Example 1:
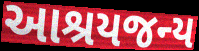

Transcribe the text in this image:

આશ્રયજન્ય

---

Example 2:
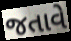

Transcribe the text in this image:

જતાવે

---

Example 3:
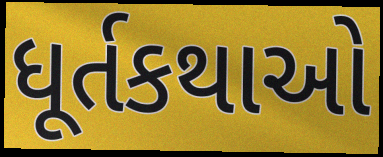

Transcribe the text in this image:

ધૂર્તકથાઓ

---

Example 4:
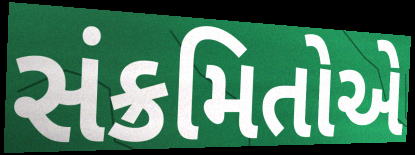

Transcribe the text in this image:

સંક્રમિતોએ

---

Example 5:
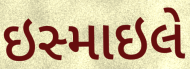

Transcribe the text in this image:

ઇસ્માઇલે